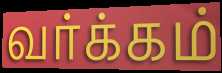
வர்க்கம்